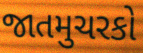
જાતમુચરકો